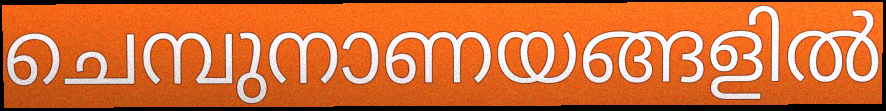
ചെമ്പുനാണയങ്ങളിൽ